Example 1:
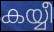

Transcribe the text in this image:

കയ്യീ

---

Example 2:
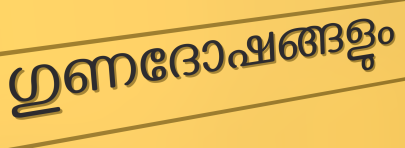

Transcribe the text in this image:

ഗുണദോഷങ്ങളും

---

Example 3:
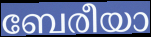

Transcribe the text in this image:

ബേരീയാ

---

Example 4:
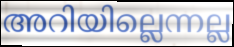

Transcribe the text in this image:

അറിയില്ലെന്നല്ല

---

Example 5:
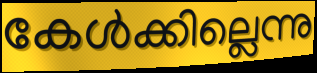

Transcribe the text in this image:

കേൾക്കില്ലെന്നു